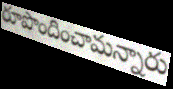
రూపొందించామన్నారు